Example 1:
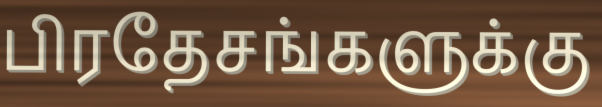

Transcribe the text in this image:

பிரதேசங்களுக்கு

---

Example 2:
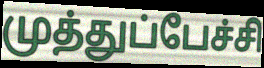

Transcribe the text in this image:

முத்துப்பேச்சி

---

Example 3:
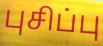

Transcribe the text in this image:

புசிப்பு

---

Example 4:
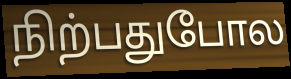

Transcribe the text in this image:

நிற்பதுபோல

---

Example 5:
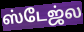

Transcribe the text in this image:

ஸ்டேஜ்ல